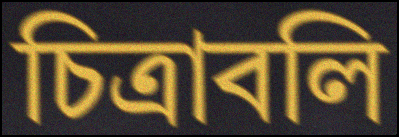
চিত্রাবলি